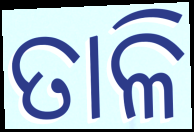
ତାଳି